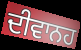
ਦੀਵਾਨਹ